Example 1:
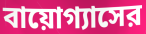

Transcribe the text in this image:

বায়োগ্যাসের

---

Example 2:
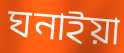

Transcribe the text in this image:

ঘনাইয়া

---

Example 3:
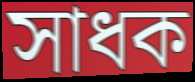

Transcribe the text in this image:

সাধক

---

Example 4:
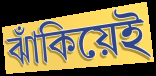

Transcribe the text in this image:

ঝাঁকিয়েই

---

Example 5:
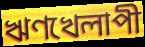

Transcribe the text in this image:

ঋণখেলাপী